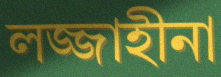
লজ্জাহীনা